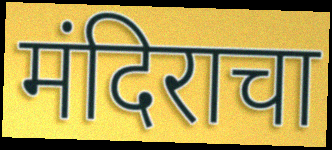
मंदिराचा